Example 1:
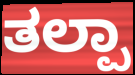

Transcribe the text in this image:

ತಲ್ಪಾ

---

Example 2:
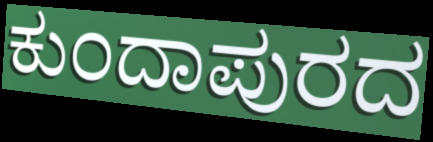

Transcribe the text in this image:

ಕುಂದಾಪುರದ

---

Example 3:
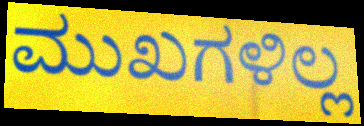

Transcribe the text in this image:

ಮುಖಗಳಿಲ್ಲ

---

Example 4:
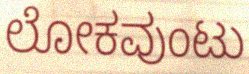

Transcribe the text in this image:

ಲೋಕವುಂಟು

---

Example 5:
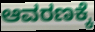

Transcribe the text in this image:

ಆವರಣಕ್ಕೆ